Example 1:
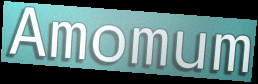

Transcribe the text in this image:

Amomum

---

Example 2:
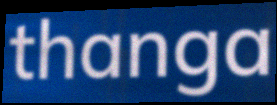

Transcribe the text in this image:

thanga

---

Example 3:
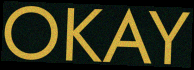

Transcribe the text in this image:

OKAY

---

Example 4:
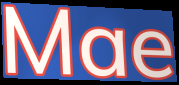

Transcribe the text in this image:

Mae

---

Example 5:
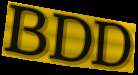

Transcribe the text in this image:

BDD